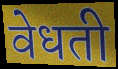
वेधती